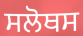
ਸਲੋਥਸ